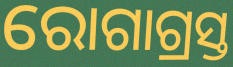
ରୋଗାଗ୍ରସ୍ତ